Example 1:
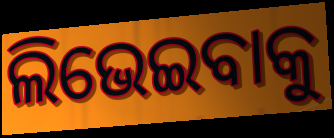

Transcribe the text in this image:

ଲିଭେଇବାକୁ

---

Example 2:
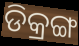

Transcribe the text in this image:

ଡିକ୍ରଙ୍ଗ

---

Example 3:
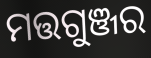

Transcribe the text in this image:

ମତ୍ତଗୁଞ୍ଜର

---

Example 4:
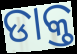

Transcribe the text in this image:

ଡାକ୍ତ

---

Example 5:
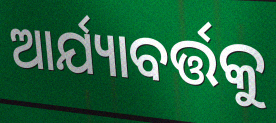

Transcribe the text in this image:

ଆର୍ଯ୍ୟାବର୍ତ୍ତକୁ